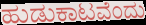
ಹುಡುಕಾಟವೆಂದು